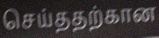
செய்ததற்கான